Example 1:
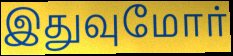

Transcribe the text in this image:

இதுவுமோர்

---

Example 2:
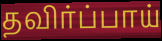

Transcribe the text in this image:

தவிர்ப்பாய்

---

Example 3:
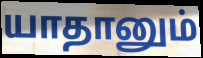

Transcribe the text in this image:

யாதானும்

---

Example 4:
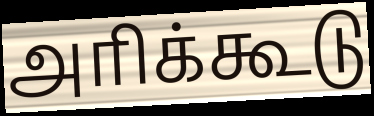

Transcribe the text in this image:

அரிக்கூடு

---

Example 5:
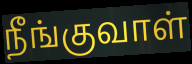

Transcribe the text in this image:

நீங்குவாள்